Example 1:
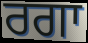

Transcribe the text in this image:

ਰਗਾ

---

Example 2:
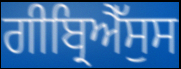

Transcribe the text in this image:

ਗੀਬ੍ਰਿਐੱਸੁਸ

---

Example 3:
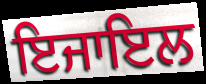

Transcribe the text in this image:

ਇਜਾਇਲ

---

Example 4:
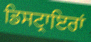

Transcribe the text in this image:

ਡਿਸਟ੍ਰਾਇਰਾਂ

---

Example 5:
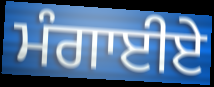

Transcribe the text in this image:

ਮੰਗਾਈਏ